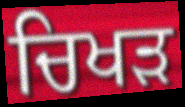
ਚਿਖੜ